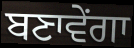
ਬਣਾਵੇਂਗਾ